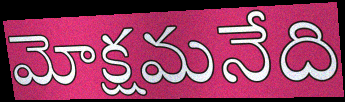
మోక్షమనేది